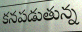
కనపడుతున్న